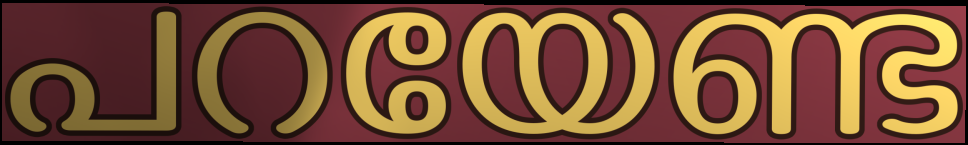
പറയേണ്ട